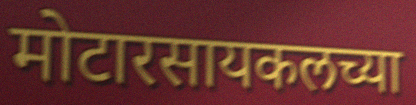
मोटारसायकलच्या